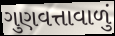
ગુણવત્તાવાળું